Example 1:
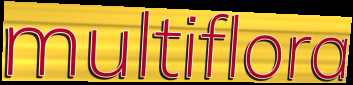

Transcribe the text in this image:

multiflora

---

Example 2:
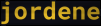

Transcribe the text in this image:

jordene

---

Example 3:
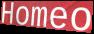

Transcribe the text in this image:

Homeo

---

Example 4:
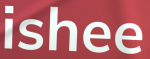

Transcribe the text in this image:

ishee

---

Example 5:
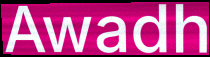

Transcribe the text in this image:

Awadh